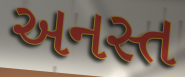
અનસ્ત